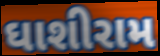
ઘાશીરામ